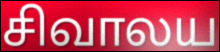
சிவாலய